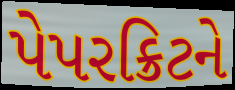
પેપરક્રિટને